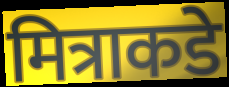
मित्राकडे